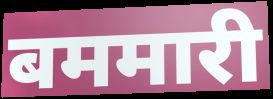
बममारी